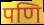
पणि